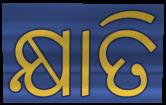
କ୍ଷାତି